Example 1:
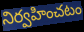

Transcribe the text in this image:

నిర్వహించటం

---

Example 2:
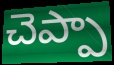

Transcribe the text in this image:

చెప్పా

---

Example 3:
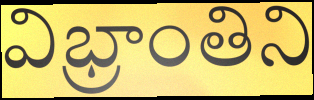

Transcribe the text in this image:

విభ్రాంతిని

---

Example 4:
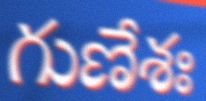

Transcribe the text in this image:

గుణేశః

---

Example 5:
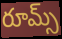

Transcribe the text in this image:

రూమ్స్